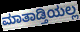
ಮಾತಾಡ್ತಿಯಲ್ಲ